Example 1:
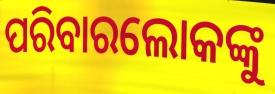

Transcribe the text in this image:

ପରିବାରଲୋକଙ୍କୁ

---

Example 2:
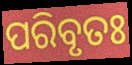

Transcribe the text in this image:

ପରିବୃତଃ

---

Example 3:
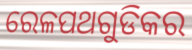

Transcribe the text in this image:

ରେଳପଥଗୁଡିକର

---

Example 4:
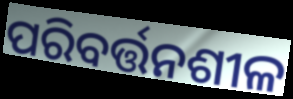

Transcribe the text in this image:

ପରିବର୍ତ୍ତନଶୀଳ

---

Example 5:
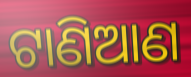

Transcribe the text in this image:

ଟାଣିଆଣ